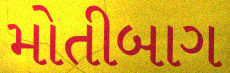
મોતીબાગ